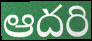
ఆదరి